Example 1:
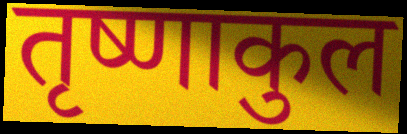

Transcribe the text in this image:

तृष्णाकुल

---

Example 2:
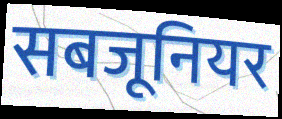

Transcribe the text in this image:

सबजूनियर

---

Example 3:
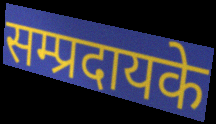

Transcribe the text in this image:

सम्प्रदायके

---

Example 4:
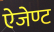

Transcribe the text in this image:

ऐजेण्ट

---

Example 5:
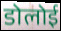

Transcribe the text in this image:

डोलोई